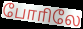
போரிலே